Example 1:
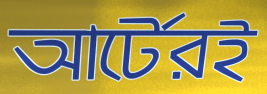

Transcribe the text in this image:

আর্টেরই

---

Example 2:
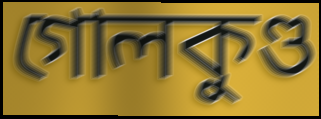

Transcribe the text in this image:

গোলকুণ্ড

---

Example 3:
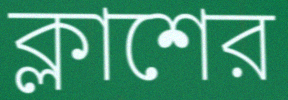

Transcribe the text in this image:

ক্লাশের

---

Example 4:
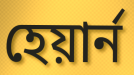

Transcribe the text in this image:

হেয়ার্ন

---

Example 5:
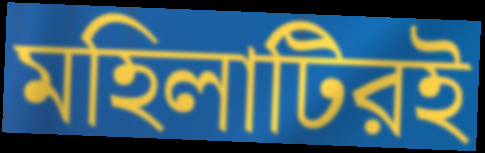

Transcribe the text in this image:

মহিলাটিরই